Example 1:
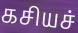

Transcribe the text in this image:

கசியச்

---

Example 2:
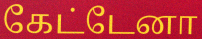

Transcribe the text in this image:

கேட்டேனா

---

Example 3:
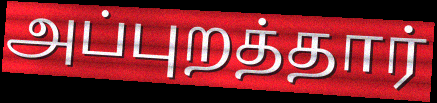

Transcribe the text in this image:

அப்புறத்தார்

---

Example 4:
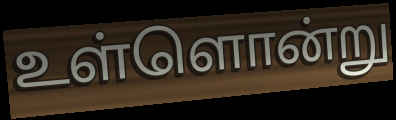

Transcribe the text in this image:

உள்ளொன்று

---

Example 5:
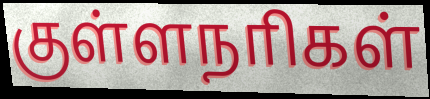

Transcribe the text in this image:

குள்ளநரிகள்